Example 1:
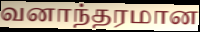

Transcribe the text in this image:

வனாந்தரமான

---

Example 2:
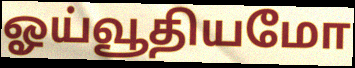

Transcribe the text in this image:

ஓய்வூதியமோ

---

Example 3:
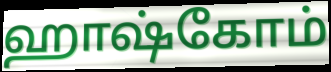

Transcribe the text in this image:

ஹாஷ்கோம்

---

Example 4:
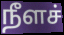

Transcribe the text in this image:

நீளச்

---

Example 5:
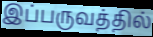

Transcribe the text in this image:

இப்பருவத்தில்